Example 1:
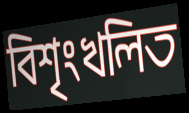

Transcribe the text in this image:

বিশৃংখলিত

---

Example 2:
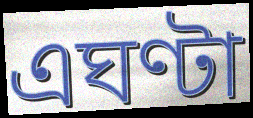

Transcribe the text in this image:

এঘণ্টা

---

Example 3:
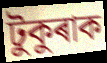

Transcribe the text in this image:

টুকুৰাক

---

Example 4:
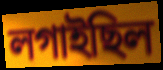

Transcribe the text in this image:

লগাইছিল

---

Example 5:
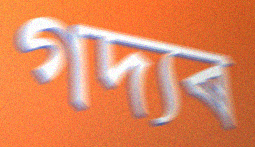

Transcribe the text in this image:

গদ্যৰ